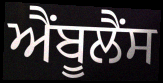
ਐੰਬੂਲੈਂਸ